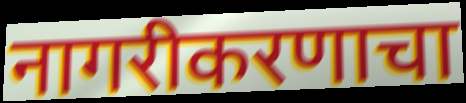
नागरीकरणाचा